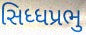
સિધ્ધપ્રભુ